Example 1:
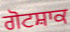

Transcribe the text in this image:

ਗੋਟਸ਼ਾਕ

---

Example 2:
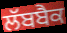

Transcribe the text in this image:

ਲੱਬਬੈਕ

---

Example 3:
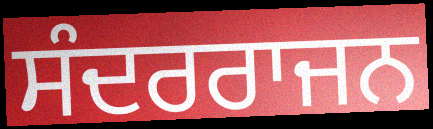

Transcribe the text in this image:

ਸੰਦਰਰਾਜਨ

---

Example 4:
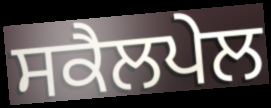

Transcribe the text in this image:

ਸਕੈਲਪੇਲ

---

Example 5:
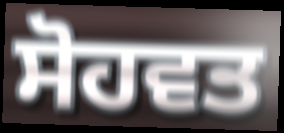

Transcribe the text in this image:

ਸੋਹਵਤ